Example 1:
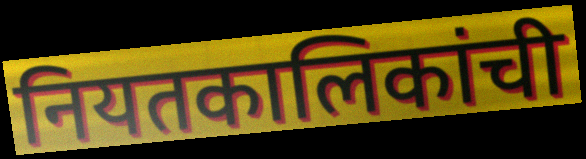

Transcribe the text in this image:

नियतकालिकांची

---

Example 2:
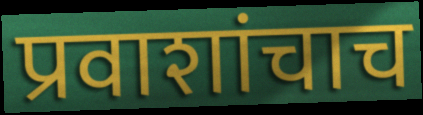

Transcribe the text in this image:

प्रवाशांचाच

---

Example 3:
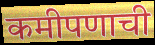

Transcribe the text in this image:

कमीपणाची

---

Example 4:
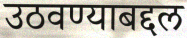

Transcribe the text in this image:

उठवण्याबद्दल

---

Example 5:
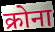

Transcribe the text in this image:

क्रोना